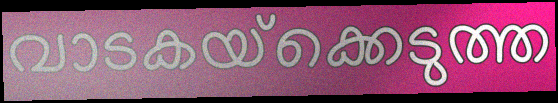
വാടകയ്‌ക്കെടുത്ത